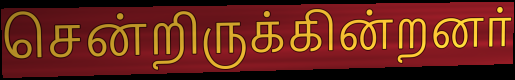
சென்றிருக்கின்றனர்